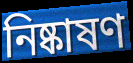
নিষ্কাষণ